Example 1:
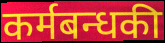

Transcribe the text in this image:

कर्मबन्धकी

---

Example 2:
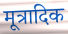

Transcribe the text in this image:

मूत्रादिक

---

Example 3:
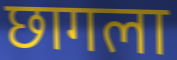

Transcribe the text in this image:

छागला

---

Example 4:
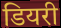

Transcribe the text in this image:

डियरी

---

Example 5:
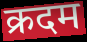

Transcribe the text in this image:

क्रदम